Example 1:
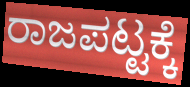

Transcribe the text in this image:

ರಾಜಪಟ್ಟಕ್ಕೆ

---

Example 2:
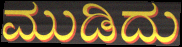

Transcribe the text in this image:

ಮುಡಿದು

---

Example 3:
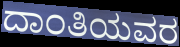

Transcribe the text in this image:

ದಾಂತಿಯವರ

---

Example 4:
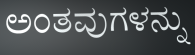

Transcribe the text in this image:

ಅಂತವುಗಳನ್ನು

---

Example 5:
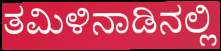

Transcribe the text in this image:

ತಮಿಳಿನಾಡಿನಲ್ಲಿ